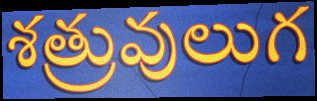
శత్రువులుగ